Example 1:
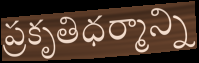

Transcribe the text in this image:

ప్రకృతిధర్మాన్ని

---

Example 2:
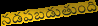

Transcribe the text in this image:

నడపబడుతుంది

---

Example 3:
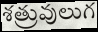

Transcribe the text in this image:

శత్రువులుగ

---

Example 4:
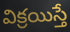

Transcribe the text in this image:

విక్రయిస్తే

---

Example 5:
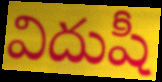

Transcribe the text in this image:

విదుషీ